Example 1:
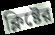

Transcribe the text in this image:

ক্লিষ্টের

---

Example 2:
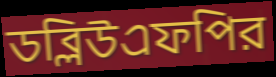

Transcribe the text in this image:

ডব্লিউএফপির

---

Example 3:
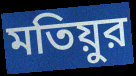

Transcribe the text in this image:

মতিয়ুর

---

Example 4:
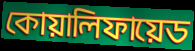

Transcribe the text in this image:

কোয়ালিফায়েড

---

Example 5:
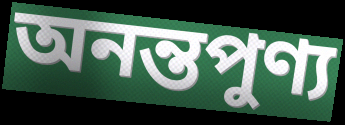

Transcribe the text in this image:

অনন্তপুণ্য